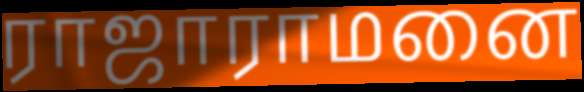
ராஜாராமனை